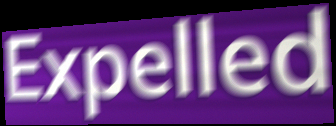
Expelled